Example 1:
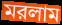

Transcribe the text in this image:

মরলাম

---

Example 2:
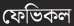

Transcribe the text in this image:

ফেভিকল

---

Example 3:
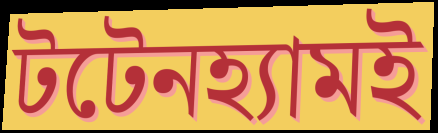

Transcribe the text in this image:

টটেনহ্যামই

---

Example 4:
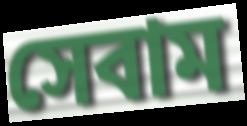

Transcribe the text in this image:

সেবাম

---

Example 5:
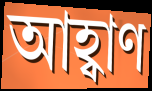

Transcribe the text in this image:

আহ্বাণ